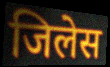
जिलेस